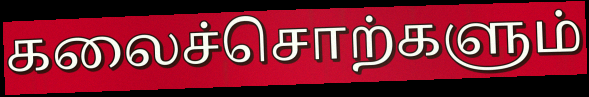
கலைச்சொற்களும்